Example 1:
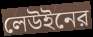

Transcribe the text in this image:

লেউইনের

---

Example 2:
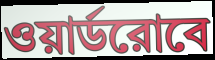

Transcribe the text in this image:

ওয়ার্ডরোবে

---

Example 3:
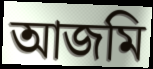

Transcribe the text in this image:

আজমি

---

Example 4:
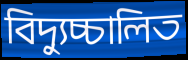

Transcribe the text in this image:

বিদ্যুচ্চালিত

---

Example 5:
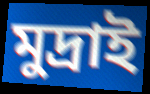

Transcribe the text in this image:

মুদ্রাই